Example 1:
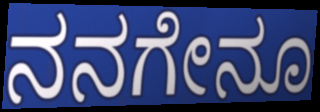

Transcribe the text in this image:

ನನಗೇನೂ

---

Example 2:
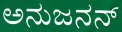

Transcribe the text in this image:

ಅನುಜನನ್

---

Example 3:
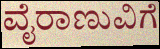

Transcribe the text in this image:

ವೈರಾಣುವಿಗೆ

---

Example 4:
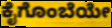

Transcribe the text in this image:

ಕೈಗೊಂಬೆಯೇ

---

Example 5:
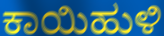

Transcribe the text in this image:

ಕಾಯಿಹುಳಿ